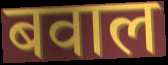
बवाल